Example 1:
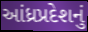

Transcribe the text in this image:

આંધ્રપ્રદેશનું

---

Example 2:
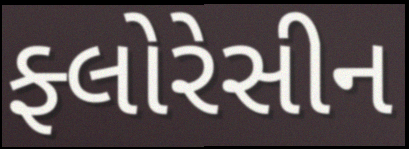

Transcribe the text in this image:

ફ્લોરેસીન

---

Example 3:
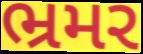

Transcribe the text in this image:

ભ્રમર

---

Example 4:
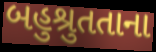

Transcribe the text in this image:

બહુશ્રુતતાના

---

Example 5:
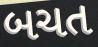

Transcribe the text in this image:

બચત